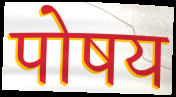
पोषय